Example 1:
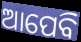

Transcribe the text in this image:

ଆପେବି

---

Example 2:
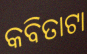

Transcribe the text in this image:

କବିତାଟା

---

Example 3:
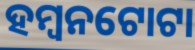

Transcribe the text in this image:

ହମ୍ବନଟୋଟା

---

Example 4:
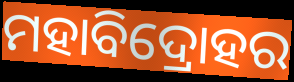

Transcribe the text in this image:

ମହାବିଦ୍ରୋହର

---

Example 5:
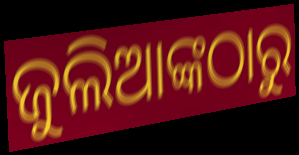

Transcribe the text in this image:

ଜୁଲିଆଙ୍କଠାରୁ